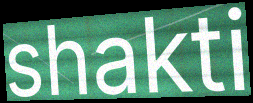
shakti